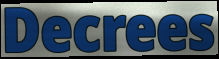
Decrees